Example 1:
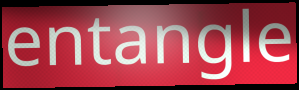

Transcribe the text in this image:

entangle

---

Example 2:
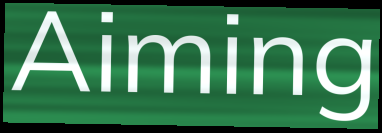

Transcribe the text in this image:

Aiming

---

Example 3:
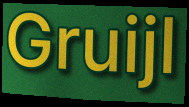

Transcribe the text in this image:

Gruijl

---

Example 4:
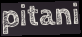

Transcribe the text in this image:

pitani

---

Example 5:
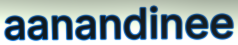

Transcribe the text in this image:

aanandinee